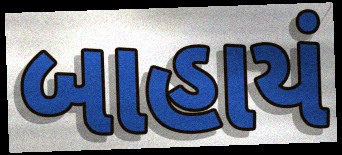
બાહાયં